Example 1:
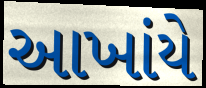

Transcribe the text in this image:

આખાંયે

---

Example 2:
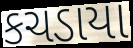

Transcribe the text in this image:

કચડાયા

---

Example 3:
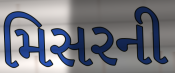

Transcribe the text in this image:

મિસરની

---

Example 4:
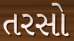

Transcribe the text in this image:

તરસો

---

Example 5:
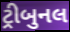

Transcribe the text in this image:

ટ્રીબુનલ